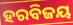
ହରବିଜୟ